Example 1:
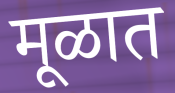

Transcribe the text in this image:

मूळात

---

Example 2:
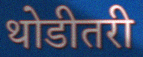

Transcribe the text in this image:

थोडीतरी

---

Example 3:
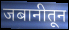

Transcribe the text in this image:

जबानीतून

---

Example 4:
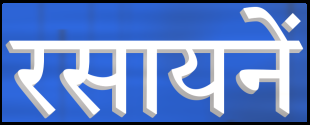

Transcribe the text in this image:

रसायनें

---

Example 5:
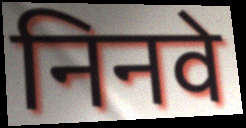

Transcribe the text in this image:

निनवे